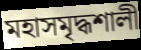
মহাসমৃদ্ধশালী